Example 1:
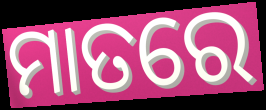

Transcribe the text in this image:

ମାତରେ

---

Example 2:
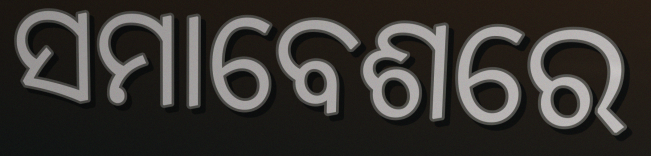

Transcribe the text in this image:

ସମାବେଶରେ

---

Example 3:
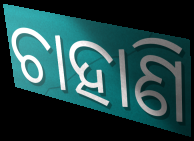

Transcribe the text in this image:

ଚାହାଣି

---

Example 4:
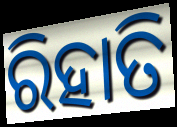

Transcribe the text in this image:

ରିହାତି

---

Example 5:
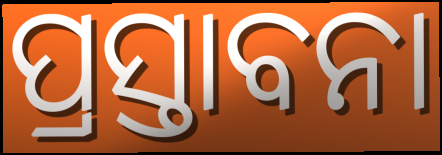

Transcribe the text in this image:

ପ୍ରସ୍ତାବନା